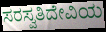
ಸರಸ್ವತಿದೇವಿಯ